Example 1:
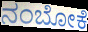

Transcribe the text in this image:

ನಂಬೋಕೆ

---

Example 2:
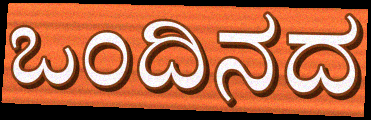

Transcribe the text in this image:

ಒಂದಿನದ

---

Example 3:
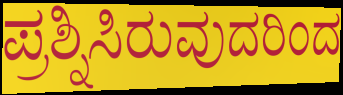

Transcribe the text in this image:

ಪ್ರಶ್ನಿಸಿರುವುದರಿಂದ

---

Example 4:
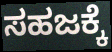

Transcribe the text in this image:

ಸಹಜಕ್ಕೆ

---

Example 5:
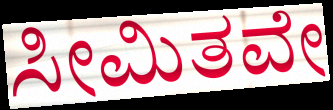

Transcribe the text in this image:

ಸೀಮಿತವೇ